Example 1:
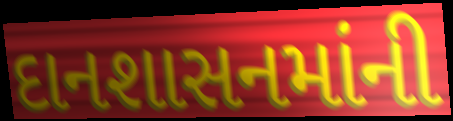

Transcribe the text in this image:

દાનશાસનમાંની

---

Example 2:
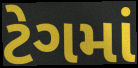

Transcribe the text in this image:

ટેગમાં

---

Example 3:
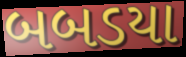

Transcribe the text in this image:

બબડયા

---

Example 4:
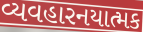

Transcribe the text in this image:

વ્યવહારનયાત્મક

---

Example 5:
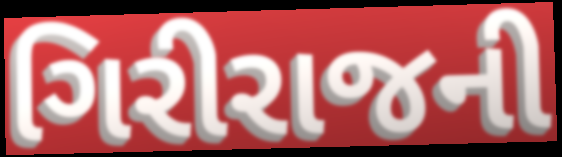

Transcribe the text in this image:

ગિરીરાજની